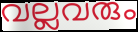
വല്ലവരും